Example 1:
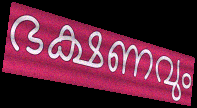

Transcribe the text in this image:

ഭക്ഷണവും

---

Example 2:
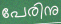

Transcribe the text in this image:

പേരിനു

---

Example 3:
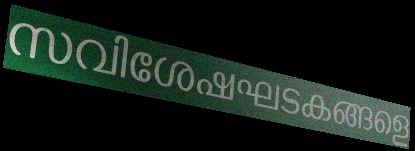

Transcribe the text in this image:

സവിശേഷഘടകങ്ങളെ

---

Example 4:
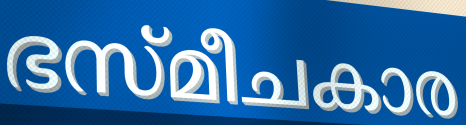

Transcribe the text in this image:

ഭസ്മീചകാര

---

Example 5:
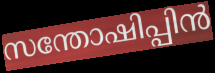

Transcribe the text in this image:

സന്തോഷിപ്പിൻ